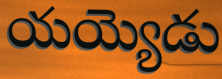
యయ్యెడు